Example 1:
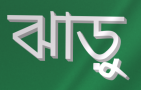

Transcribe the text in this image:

ঝাড়ু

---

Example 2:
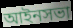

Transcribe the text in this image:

আইনসভা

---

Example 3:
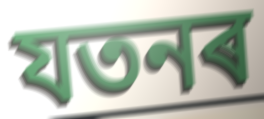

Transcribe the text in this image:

যতনৰ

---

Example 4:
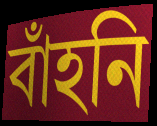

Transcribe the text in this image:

বাঁহনি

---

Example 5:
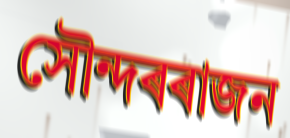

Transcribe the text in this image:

সৌন্দৰৰাজন